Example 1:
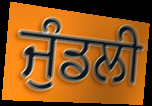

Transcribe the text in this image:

ਜੁੰਡਲੀ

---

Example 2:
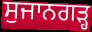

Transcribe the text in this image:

ਸੁਜਾਨਗੜ੍ਹ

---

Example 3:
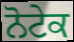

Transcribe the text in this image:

ਨੋਟੇਕ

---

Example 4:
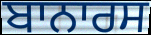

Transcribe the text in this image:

ਬਾਨਾਰਸ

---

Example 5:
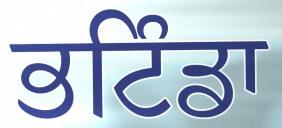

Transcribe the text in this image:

ਭਟਿੰਡਾ